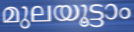
മുലയൂട്ടാം